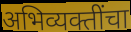
अभिव्यक्तींचा